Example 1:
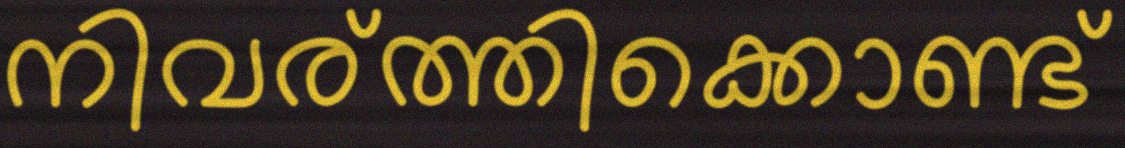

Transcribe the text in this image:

നിവര്ത്തിക്കൊണ്ട്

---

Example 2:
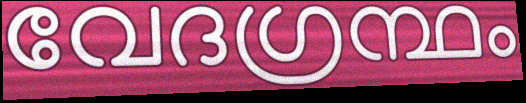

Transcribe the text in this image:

വേദഗ്രന്ഥം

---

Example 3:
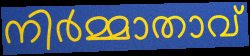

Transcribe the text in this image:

നിർമ്മാതാവ്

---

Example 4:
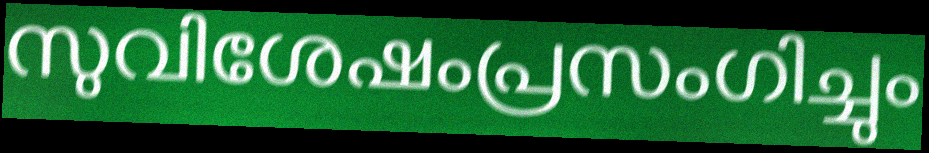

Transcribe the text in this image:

സുവിശേഷംപ്രസംഗിച്ചും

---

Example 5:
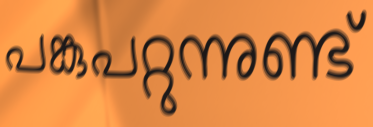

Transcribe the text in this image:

പങ്കുപറ്റുന്നുണ്ട്